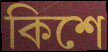
কিশে